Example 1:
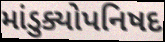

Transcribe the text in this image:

માંડુક્યોપનિષદ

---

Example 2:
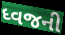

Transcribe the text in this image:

ધ્વજની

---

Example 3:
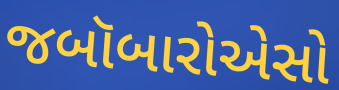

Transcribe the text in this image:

જબૉબારોએસો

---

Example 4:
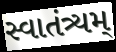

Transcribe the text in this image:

સ્વાતંત્ર્યમ્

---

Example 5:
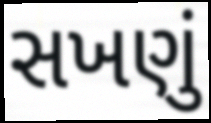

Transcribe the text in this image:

સખણું